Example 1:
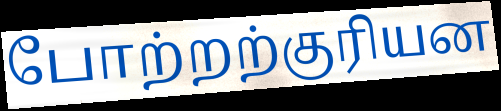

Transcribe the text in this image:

போற்றற்குரியன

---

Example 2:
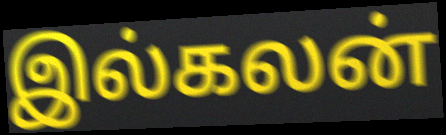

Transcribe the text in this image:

இல்கலன்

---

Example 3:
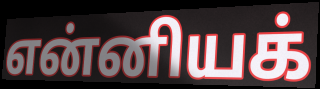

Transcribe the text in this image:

என்னியக்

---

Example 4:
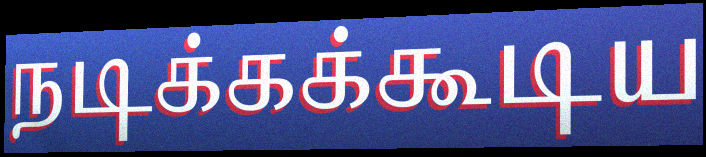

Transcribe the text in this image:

நடிக்கக்கூடிய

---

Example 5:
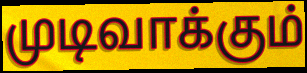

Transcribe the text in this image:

முடிவாக்கும்